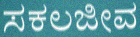
ಸಕಲಜೀವ